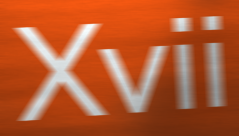
Xvii